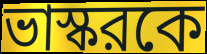
ভাস্করকে